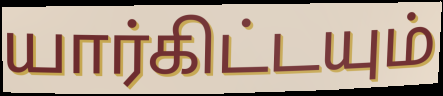
யார்கிட்டயும்